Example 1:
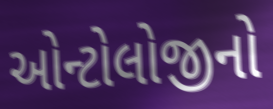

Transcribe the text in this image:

ઓન્ટોલોજીનો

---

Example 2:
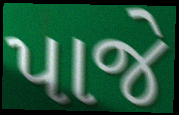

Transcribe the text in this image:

પાજે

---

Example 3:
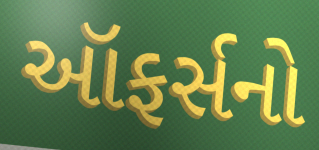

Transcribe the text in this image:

ઑફર્સનો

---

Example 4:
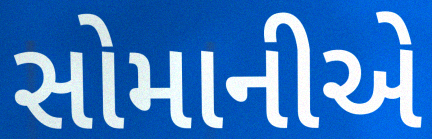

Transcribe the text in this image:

સોમાનીએ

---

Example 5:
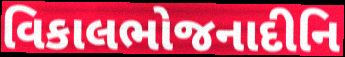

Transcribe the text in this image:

વિકાલભોજનાદીનિ